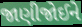
જાણીજોઈને